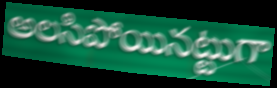
అలసిపోయినట్టుగా